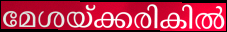
മേശയ്ക്കരികിൽ